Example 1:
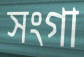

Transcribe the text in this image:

সংগা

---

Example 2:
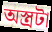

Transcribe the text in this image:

অস্ত্রটা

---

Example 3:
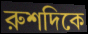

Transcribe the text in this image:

রুশদিকে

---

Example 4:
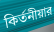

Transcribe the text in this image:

কির্তনীয়ার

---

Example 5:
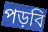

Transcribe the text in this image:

পড়বি